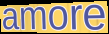
amore